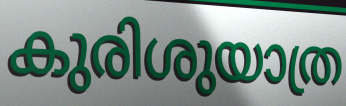
കുരിശുയാത്ര